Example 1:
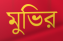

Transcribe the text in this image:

মুভির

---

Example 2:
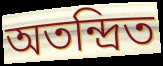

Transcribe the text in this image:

অতন্দ্রিত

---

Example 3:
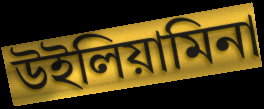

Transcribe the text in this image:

উইলিয়ামিনা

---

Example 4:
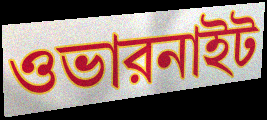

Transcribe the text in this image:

ওভারনাইট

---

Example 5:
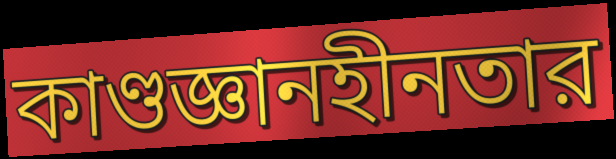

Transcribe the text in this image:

কাণ্ডজ্ঞানহীনতার